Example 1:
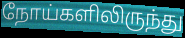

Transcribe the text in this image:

நோய்களிலிருந்து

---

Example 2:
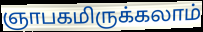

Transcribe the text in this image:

ஞாபகமிருக்கலாம்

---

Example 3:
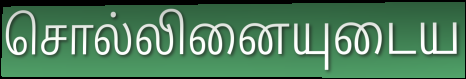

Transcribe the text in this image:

சொல்லினையுடைய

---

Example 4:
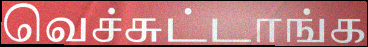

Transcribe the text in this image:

வெச்சுட்டாங்க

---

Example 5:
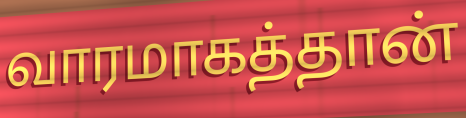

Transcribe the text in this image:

வாரமாகத்தான்